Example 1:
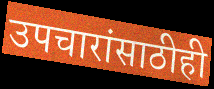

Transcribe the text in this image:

उपचारांसाठीही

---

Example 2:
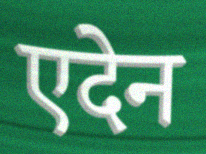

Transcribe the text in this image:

एदेन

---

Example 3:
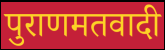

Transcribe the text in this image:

पुराणमतवादी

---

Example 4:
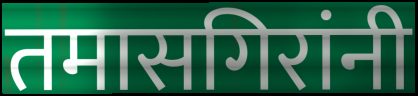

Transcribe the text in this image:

तमासगिरांनी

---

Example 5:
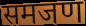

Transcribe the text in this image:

समजण